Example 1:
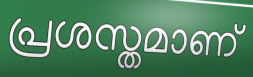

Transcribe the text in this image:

പ്രശസ്തമാണ്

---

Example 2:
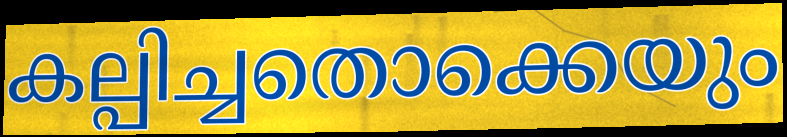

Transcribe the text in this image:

കല്പിച്ചതൊക്കെയും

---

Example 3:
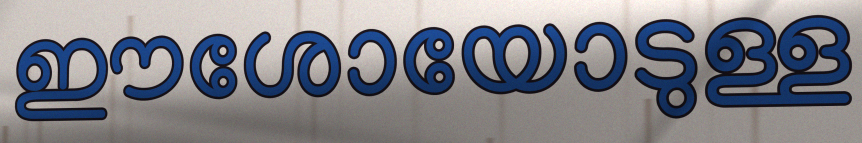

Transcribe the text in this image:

ഈശോയോടുള്ള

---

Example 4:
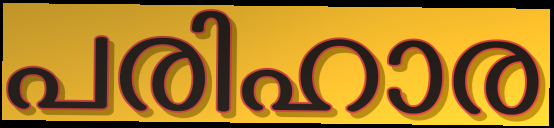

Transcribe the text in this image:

പരിഹാര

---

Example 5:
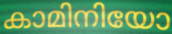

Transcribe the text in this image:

കാമിനിയോ